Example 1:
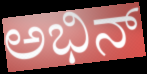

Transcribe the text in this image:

ಅಭಿನ್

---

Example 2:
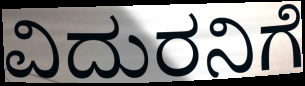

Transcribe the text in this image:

ವಿದುರನಿಗೆ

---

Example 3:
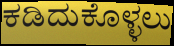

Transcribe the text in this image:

ಕಡಿದುಕೊಳ್ಳಲು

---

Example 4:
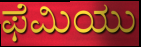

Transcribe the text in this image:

ಫೆಮಿಯು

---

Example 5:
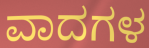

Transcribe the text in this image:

ವಾದಗಳ